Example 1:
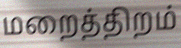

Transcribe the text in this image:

மறைத்திறம்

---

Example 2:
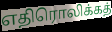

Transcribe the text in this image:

எதிரொலிக்கத்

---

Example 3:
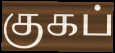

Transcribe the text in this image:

குகப்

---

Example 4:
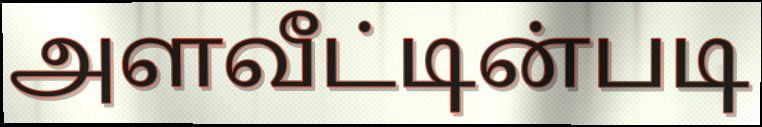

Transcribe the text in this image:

அளவீட்டின்படி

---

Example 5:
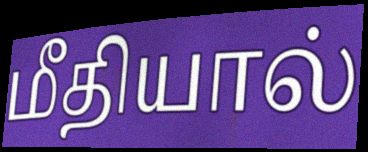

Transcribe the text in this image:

மீதியால்